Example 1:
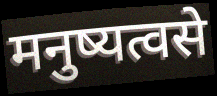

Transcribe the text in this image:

मनुष्यत्वसे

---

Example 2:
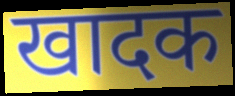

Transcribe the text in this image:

खादक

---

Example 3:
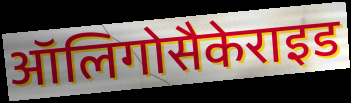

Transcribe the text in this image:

ऑलिगोसैकेराइड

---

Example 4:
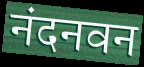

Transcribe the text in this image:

नंदनवन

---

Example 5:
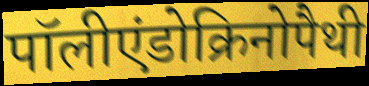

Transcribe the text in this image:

पॉलीएंडोक्रिनोपैथी